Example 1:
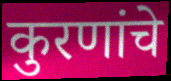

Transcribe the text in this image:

कुरणांचे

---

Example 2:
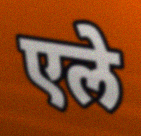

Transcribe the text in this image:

एले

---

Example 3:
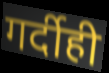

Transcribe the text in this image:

गर्दीही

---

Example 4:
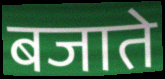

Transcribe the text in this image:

बजाते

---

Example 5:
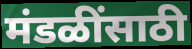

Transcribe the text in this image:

मंडळींसाठी